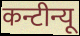
कन्टीन्यू